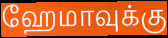
ஹேமாவுக்கு